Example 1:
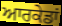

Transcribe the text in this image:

ਆਰਕੇਡਾਂ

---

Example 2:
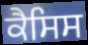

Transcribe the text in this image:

ਕੈਸਿਸ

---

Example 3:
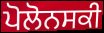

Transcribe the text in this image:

ਪੋਲੋਨਸਕੀ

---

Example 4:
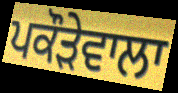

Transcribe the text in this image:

ਪਕੌੜੇਵਾਲਾ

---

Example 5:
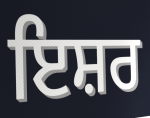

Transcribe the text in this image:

ਇਸ਼ਰ